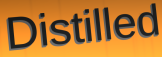
Distilled